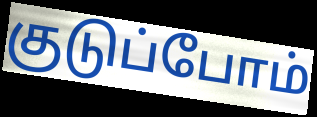
குடுப்போம்